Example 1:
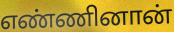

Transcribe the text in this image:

எண்ணினான்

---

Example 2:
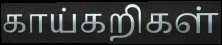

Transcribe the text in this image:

காய்கறிகள்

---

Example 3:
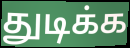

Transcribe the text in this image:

துடிக்க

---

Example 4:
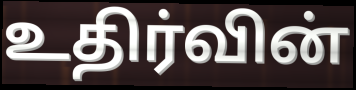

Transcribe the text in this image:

உதிர்வின்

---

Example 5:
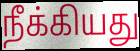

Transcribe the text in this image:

நீக்கியது